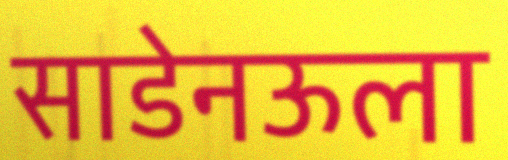
साडेनऊला